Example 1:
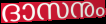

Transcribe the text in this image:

ദാസനും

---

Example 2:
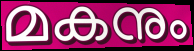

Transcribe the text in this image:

മകനും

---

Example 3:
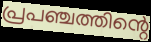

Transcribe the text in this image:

പ്രപഞ്ചത്തിന്റെ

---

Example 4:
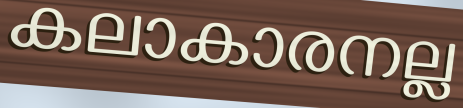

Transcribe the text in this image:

കലാകാരനല്ല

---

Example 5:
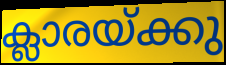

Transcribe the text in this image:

ക്ലാരയ്ക്കു